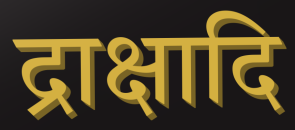
द्राक्षादि